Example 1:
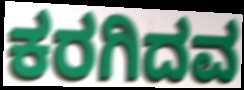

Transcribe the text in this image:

ಕರಗಿದವ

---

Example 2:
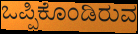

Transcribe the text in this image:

ಒಪ್ಪಿಕೊಂಡಿರುವ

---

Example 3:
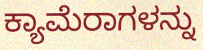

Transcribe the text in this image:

ಕ್ಯಾಮೆರಾಗಳನ್ನು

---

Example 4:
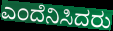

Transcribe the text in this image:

ಎಂದೆನಿಸಿದರು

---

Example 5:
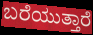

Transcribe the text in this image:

ಬರೆಯುತ್ತಾರೆ